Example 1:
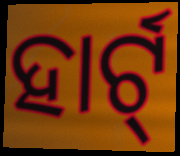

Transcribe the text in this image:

ହାର୍ଟ୍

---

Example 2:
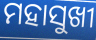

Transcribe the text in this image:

ମହାସୁଖୀ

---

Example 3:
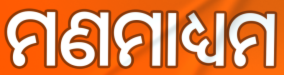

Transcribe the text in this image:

ମଣମାଧ୍ୟମ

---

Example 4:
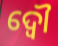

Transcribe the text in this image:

ଦ୍ଵୌ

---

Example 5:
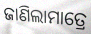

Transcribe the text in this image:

ଜାଣିଲାମାତ୍ରେ